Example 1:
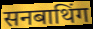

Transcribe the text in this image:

सनबाथिंग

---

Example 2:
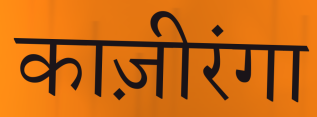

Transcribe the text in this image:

काज़ीरंगा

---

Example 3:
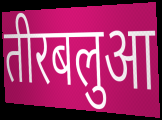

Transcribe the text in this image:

तीरबलुआ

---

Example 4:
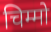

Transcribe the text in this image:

चिम्मो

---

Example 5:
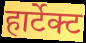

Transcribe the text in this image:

हार्टेक्ट